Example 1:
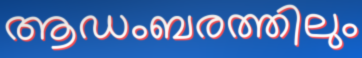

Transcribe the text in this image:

ആഡംബരത്തിലും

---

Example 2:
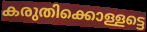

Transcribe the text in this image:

കരുതിക്കൊള്ളട്ടെ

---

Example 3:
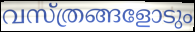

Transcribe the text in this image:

വസ്ത്രങ്ങളോടും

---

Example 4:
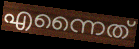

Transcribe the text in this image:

എന്നൈത്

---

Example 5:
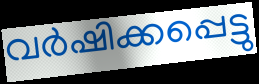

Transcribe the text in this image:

വർഷിക്കപ്പെട്ടു